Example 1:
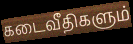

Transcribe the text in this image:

கடைவீதிகளும்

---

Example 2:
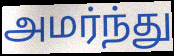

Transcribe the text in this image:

அமர்ந்து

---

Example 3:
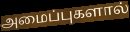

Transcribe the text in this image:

அமைப்புகளால்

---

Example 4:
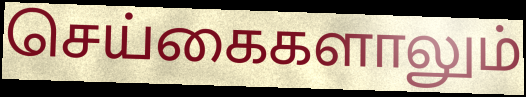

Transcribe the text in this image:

செய்கைகளாலும்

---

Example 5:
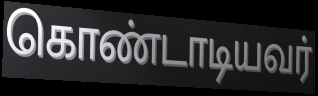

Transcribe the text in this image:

கொண்டாடியவர்